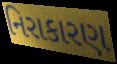
નિરાકારણ